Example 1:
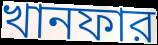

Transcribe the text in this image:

খানফার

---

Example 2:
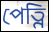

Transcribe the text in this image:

পেত্নি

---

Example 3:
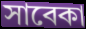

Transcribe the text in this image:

সাবেকা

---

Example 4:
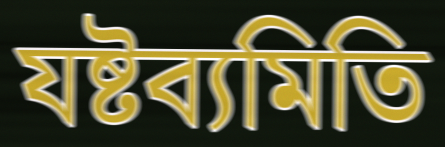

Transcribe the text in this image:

যষ্টব্যমিতি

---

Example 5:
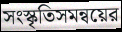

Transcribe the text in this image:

সংস্কৃতিসমন্বয়ের